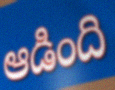
ఆడింది